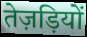
तेज़ड़ियों